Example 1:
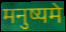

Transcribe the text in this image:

मनुष्यमे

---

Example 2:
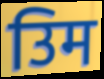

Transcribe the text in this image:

उिम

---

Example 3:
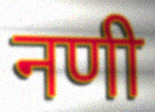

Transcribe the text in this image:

नणी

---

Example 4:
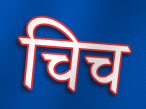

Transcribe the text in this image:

चिच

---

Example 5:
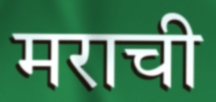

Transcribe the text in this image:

मराची